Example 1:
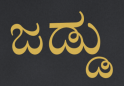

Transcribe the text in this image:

ಜಡ್ಡು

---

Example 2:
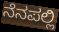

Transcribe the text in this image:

ನೆನಪಲ್ಲಿ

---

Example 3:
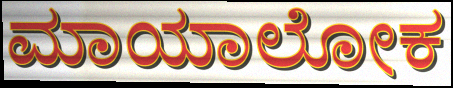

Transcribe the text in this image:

ಮಾಯಾಲೋಕ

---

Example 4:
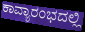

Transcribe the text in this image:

ಕಾವ್ಯಾರಂಭದಲ್ಲಿ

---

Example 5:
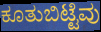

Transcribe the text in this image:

ಕೂತುಬಿಟ್ಟೆವು